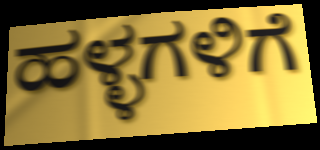
ಹಳ್ಳಗಳಿಗೆ